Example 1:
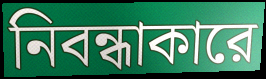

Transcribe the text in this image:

নিবন্ধাকারে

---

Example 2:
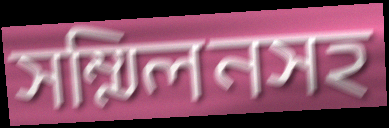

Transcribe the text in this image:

সম্মিলনসহ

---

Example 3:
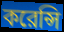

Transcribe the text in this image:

করেন্সি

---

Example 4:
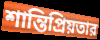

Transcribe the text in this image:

শান্তিপ্রিয়তার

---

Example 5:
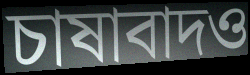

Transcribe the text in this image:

চাষাবাদও